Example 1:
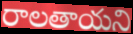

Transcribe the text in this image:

రాలతాయని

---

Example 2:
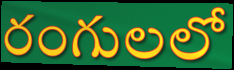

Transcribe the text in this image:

రంగులలో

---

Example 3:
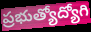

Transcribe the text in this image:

ప్రభుత్యోద్యోగి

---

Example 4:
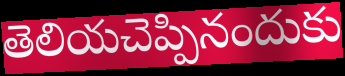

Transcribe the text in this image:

తెలియచెప్పినందుకు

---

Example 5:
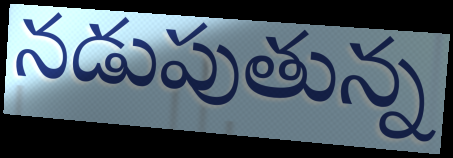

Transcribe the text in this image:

నడుపుతున్న